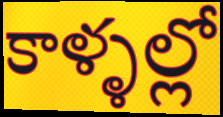
కాళ్ళల్లో